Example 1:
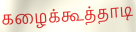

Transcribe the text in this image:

கழைக்கூத்தாடி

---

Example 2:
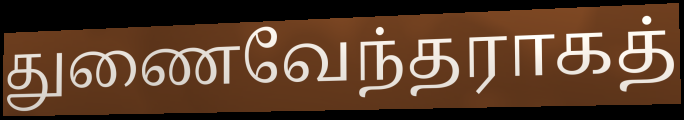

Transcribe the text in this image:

துணைவேந்தராகத்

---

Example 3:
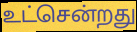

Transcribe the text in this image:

உட்சென்றது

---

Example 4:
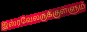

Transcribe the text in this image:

இஸ்ரவேலருக்குள்ளும்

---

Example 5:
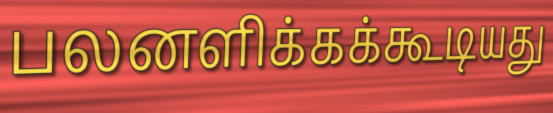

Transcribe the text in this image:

பலனளிக்கக்கூடியது